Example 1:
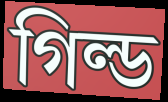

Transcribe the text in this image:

গিল্ড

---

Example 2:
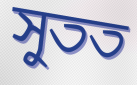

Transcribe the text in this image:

সুতত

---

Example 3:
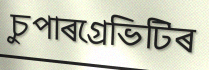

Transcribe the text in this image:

চুপাৰগ্ৰেভিটিৰ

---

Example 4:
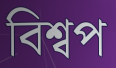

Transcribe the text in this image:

বিশ্বপ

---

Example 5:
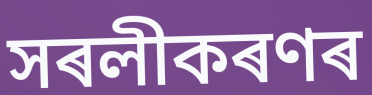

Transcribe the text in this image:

সৰলীকৰণৰ